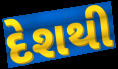
દેશથી